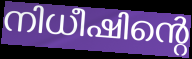
നിധീഷിന്റെ